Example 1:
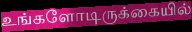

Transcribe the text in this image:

உங்களோடிருக்கையில்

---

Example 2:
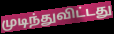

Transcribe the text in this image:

முடிந்துவிட்டது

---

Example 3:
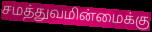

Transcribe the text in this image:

சமத்துவமின்மைக்கு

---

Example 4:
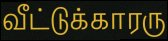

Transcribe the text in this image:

வீட்டுக்காரரு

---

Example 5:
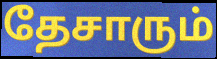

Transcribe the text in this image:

தேசாரும்